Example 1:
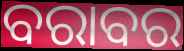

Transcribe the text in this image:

ବରାବର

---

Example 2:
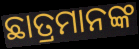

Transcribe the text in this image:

ଛାତ୍ରମାନଙ୍କ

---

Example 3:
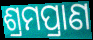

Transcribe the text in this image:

ଶ୍ରମପ୍ରାଣ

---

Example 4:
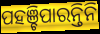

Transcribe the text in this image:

ପହଞ୍ଚିପାରନ୍ତିନି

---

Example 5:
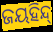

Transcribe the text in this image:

ଜୟହିନ୍ଦ୍